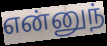
என்னுந்